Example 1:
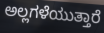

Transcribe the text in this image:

ಅಲ್ಲಗಳೆಯುತ್ತಾರೆ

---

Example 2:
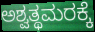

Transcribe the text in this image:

ಅಶ್ವತ್ಥಮರಕ್ಕೆ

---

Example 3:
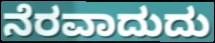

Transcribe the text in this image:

ನೆರವಾದುದು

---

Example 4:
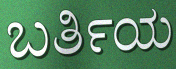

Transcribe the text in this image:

ಬರ್ತಿಯ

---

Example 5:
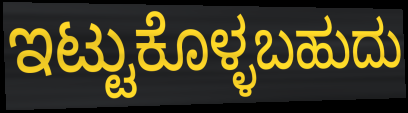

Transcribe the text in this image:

ಇಟ್ಟುಕೊಳ್ಳಬಹುದು